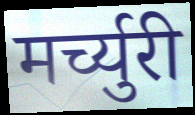
मर्च्युरी